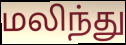
மலிந்து